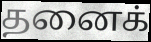
தனைக்